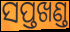
ସପ୍ତଖଣ୍ଡ